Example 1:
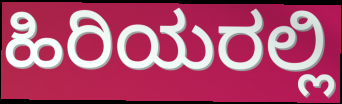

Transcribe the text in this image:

ಹಿರಿಯರಲ್ಲಿ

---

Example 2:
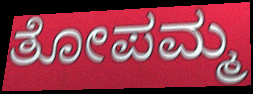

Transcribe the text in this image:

ತೋಪಮ್ಮ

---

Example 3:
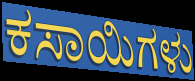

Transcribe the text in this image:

ಕಸಾಯಿಗಳು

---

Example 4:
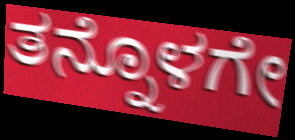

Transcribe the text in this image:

ತನ್ನೊಳಗೇ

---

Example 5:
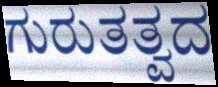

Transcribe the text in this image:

ಗುರುತತ್ವದ